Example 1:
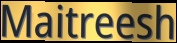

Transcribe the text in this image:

Maitreesh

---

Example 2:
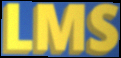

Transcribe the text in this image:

LMS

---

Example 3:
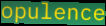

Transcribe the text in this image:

opulence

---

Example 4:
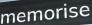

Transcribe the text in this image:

memorise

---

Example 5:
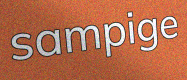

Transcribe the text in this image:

sampige